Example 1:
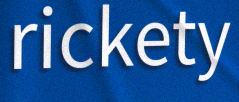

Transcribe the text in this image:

rickety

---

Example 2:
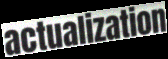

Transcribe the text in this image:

actualization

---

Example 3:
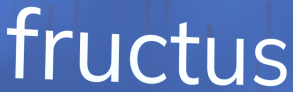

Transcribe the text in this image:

fructus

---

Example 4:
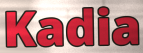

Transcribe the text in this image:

Kadia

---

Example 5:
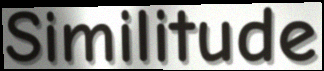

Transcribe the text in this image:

Similitude